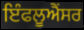
ਇੰਫਲੂਐਂਸਰ